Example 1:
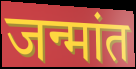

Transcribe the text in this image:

जन्मांत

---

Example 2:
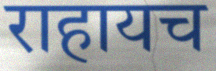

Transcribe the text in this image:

राहायच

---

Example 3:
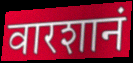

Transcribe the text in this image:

वारशानं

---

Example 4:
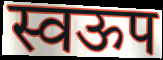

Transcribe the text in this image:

स्वऊप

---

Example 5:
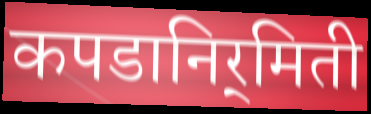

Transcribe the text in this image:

कपडानिर्मिती